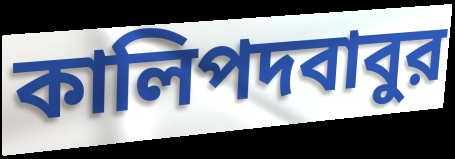
কালিপদবাবুর